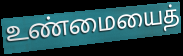
உண்மையைத்